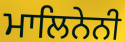
ਮਾਲਿਨੇਨੀ